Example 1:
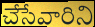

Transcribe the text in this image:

చేసేవారిని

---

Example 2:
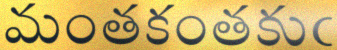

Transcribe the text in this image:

మంతకంతకుఁ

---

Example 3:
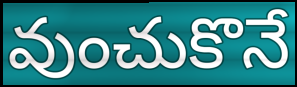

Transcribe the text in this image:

వుంచుకొనే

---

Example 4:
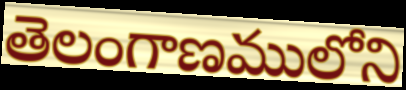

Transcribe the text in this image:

తెలంగాణములోని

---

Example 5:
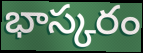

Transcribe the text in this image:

భాస్కరం